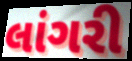
લાંગરી